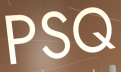
PSQ